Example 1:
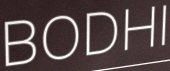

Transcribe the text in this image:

BODHI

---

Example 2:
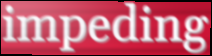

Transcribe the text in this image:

impeding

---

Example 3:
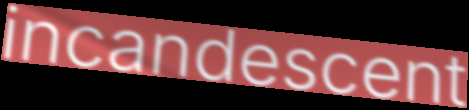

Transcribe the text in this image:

incandescent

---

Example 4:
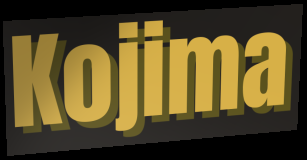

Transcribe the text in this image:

Kojima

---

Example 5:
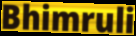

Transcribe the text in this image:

Bhimruli